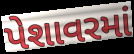
પેશાવરમાં